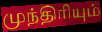
முந்திரியும்